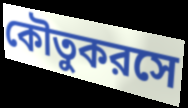
কৌতুকরসে